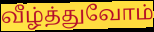
வீழ்த்துவோம்